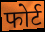
फोर्ट